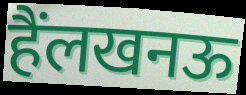
हैंलखनऊ